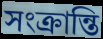
সংক্ৰান্তি